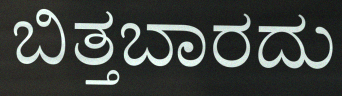
ಬಿತ್ತಬಾರದು